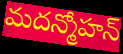
మదన్మోహన్